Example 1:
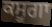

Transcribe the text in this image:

ਕਸੂਗਾ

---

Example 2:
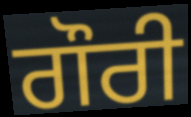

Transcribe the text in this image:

ਗੌਰੀ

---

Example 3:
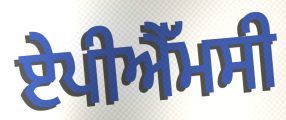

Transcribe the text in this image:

ਏਪੀਐੱਮਸੀ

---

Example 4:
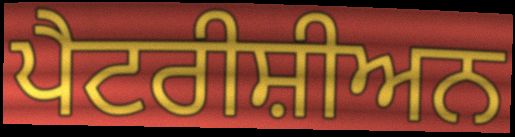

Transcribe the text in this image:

ਪੈਟਰੀਸ਼ੀਅਨ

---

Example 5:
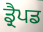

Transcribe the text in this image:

ਡ੍ਰੈਪਡ